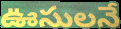
ఊసులనే